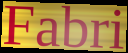
Fabri